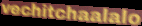
vechitchaalalo